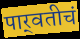
पार्वतीचं